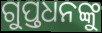
ଗୁପ୍ତଧନଙ୍କୁ